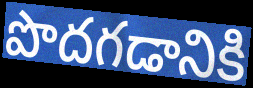
పొదగడానికి